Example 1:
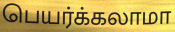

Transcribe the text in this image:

பெயர்க்கலாமா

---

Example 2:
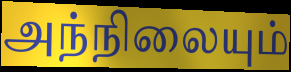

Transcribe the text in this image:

அந்நிலையும்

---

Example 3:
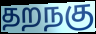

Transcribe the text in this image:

தறநகு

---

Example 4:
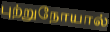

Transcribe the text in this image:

புற்றுநோயால்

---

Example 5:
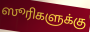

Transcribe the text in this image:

ஸூரிகளுக்கு